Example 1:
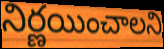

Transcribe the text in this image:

నిర్ణయించాలని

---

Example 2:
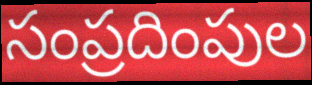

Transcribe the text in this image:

సంప్రదింపుల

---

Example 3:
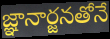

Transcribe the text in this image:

జ్ఞానార్జనతోనే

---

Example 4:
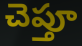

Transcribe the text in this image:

చెప్తూ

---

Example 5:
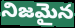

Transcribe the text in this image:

నిజమైన